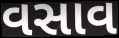
વસાવ